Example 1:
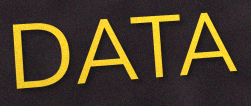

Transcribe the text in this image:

DATA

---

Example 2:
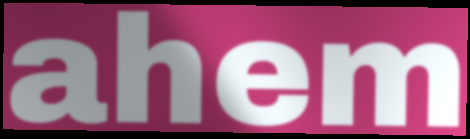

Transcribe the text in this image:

ahem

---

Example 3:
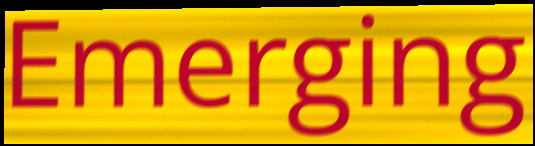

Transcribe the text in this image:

Emerging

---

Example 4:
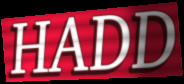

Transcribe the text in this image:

HADD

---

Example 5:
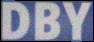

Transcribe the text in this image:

DBY